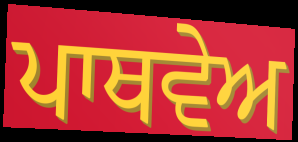
ਪਾਥਵੇਅ